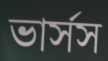
ভার্সস